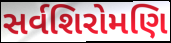
સર્વશિરોમણિ